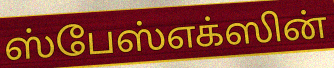
ஸ்பேஸ்எக்ஸின்